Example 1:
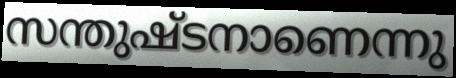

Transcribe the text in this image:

സന്തുഷ്ടനാണെന്നു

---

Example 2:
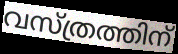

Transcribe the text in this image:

വസ്ത്രത്തിന്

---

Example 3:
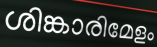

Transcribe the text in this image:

ശിങ്കാരിമേളം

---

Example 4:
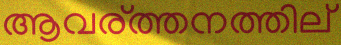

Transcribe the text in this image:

ആവര്ത്തനത്തില്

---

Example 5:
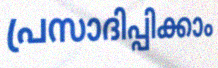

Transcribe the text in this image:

പ്രസാദിപ്പിക്കാം